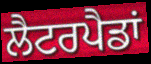
ਲੈਟਰਪੈਡਾਂ